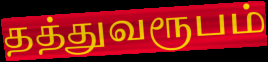
தத்துவரூபம்